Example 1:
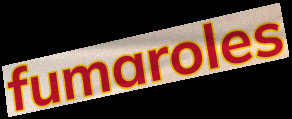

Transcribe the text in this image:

fumaroles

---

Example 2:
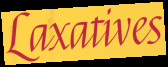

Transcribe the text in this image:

Laxatives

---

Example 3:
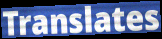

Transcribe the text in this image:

Translates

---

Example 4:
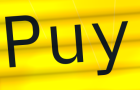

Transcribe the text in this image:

Puy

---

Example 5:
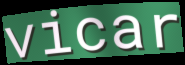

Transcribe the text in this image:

vicar